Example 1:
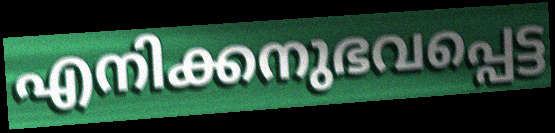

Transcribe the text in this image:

എനിക്കനുഭവപ്പെട്ട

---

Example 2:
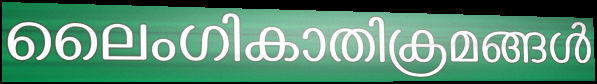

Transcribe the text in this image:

ലൈംഗികാതിക്രമങ്ങൾ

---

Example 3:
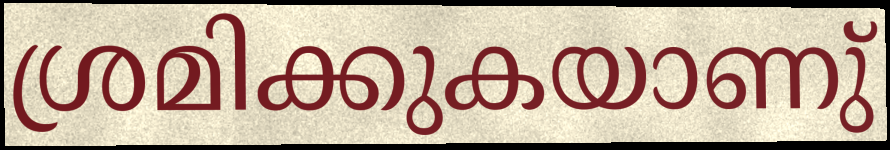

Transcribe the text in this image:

ശ്രമിക്കുകയാണു്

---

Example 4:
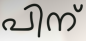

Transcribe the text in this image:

പിന്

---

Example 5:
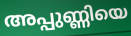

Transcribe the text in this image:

അപ്പുണ്ണിയെ